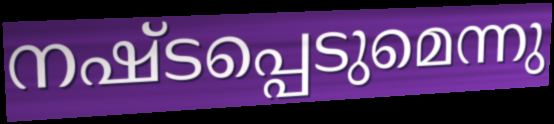
നഷ്ടപ്പെടുമെന്നു